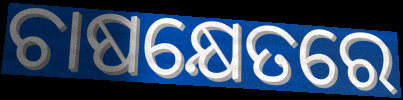
ଚାଷକ୍ଷେତରେ